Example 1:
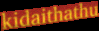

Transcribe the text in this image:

kidaithathu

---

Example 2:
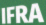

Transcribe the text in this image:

IFRA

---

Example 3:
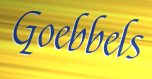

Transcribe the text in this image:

Goebbels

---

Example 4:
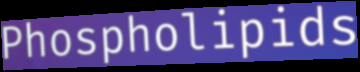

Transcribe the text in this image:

Phospholipids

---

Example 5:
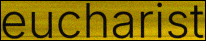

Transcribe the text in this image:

eucharist